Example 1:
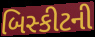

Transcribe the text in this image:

બિસ્કીટની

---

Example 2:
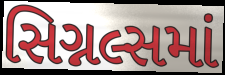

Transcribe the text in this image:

સિગ્નલ્સમાં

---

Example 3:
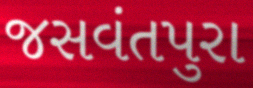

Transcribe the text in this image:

જસવંતપુરા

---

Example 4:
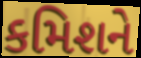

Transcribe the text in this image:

કમિશને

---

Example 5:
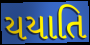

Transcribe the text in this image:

યયાતિ